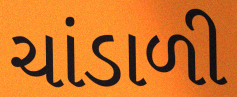
ચાંડાળી